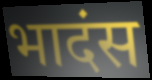
भादंस